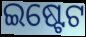
ଇଷ୍ଟେଟ